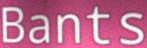
Bants